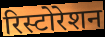
रिस्टोरेशन